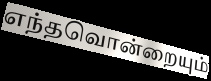
எந்தவொன்றையும்